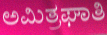
ಅಮಿತ್ರಘಾತಿ